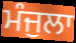
ਮੰਜੁਲਾ